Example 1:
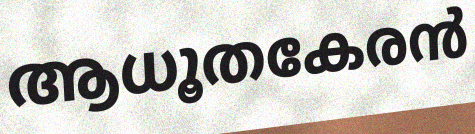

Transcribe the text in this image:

ആധൂതകേരൻ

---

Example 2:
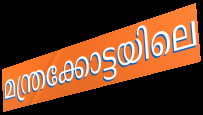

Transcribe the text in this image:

മന്ത്രക്കോട്ടയിലെ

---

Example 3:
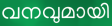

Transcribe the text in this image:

വനവുമായി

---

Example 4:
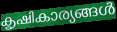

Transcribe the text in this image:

കൃഷികാര്യങ്ങൾ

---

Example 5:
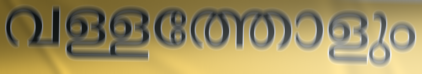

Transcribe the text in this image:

വള്ളത്തോളും